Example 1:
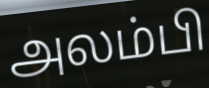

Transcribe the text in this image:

அலம்பி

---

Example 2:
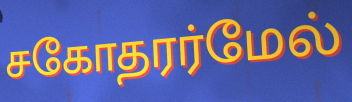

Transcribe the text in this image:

சகோதரர்மேல்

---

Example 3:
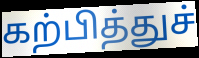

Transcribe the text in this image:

கற்பித்துச்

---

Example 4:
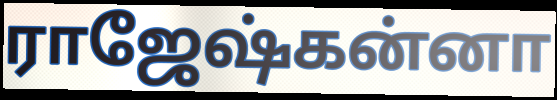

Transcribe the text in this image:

ராஜேஷ்கன்னா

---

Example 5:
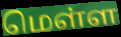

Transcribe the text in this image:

மெள்ள